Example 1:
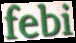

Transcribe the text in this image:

febi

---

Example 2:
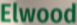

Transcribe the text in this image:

Elwood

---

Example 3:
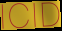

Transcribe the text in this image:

ICID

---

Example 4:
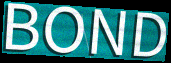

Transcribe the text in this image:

BOND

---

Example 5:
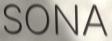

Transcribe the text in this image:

SONA